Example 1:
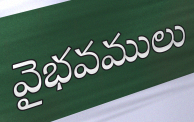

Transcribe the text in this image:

వైభవములు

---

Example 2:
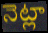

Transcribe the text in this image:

నెట్లా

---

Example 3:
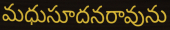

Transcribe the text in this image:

మధుసూదనరావును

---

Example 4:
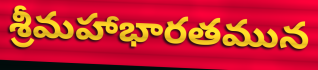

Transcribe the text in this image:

శ్రీమహాభారతమున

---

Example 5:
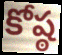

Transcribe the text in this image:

కోష్ఠ